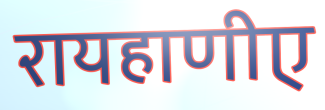
रायहाणीए